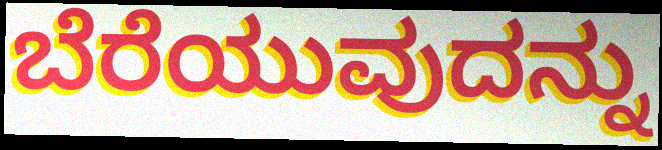
ಬೆರೆಯುವುದನ್ನು